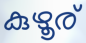
കുഴൂര്